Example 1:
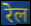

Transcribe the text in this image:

रेल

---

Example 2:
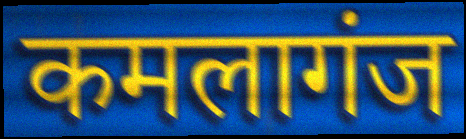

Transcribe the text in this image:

कमलागंज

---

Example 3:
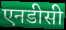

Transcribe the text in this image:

एनडीसी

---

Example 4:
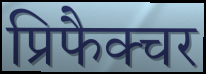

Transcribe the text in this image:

प्रिफैक्चर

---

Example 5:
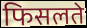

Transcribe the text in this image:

फिसलते